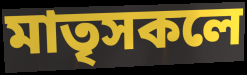
মাতৃসকলে